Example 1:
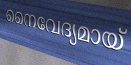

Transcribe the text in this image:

നൈവേദ്യമായ്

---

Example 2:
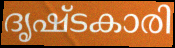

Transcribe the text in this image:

ദൃഷ്ടകാരി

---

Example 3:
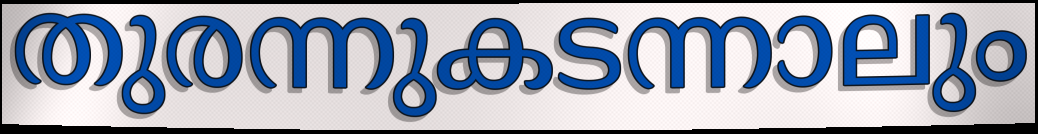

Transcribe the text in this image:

തുരന്നുകടന്നാലും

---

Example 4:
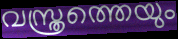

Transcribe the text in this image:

വസ്ത്രത്തെയും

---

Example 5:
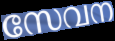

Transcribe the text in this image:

സേവന